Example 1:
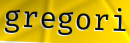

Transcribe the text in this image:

gregori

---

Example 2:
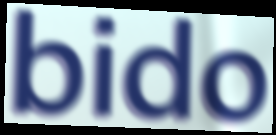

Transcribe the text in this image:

bido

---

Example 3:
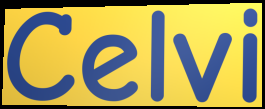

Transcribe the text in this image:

Celvi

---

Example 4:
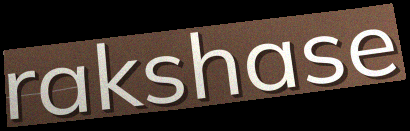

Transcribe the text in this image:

rakshase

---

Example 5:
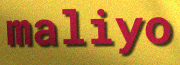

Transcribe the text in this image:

maliyo